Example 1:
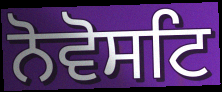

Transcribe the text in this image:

ਨੋਵੋਸਟਿ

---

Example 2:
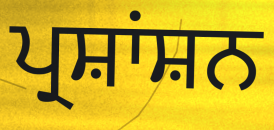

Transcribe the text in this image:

ਪ੍ਰਸ਼ਾਂਸ਼ਨ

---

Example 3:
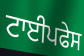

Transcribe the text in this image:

ਟਾਈਪਫੇਸ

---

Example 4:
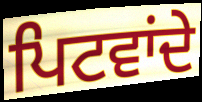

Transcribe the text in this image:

ਪਿਟਵਾਂਦੇ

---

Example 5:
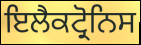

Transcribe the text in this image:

ਇਲੈਕਟ੍ਰੋਨਿਸ